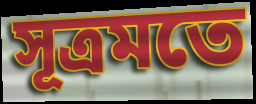
সূত্রমতে